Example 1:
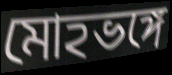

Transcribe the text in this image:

মোহভঙ্গে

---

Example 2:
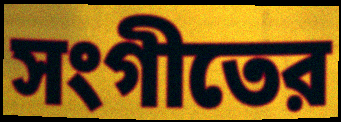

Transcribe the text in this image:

সংগীতের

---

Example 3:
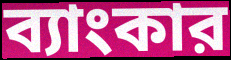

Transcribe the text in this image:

ব্যাংকার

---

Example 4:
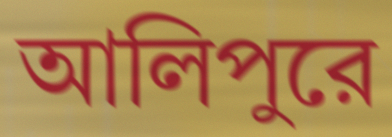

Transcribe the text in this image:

আলিপুরে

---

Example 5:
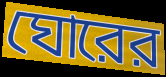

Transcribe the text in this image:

ঘোরের